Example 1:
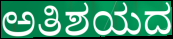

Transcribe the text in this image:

ಅತಿಶಯದ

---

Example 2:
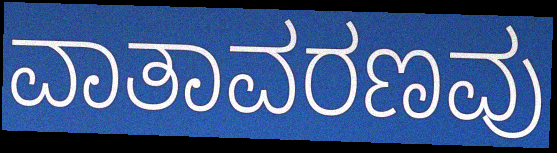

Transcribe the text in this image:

ವಾತಾವರಣವು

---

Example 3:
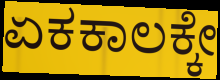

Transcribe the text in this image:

ಏಕಕಾಲಕ್ಕೇ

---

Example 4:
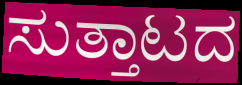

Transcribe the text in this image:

ಸುತ್ತಾಟದ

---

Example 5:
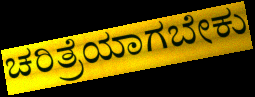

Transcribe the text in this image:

ಚರಿತ್ರೆಯಾಗಬೇಕು